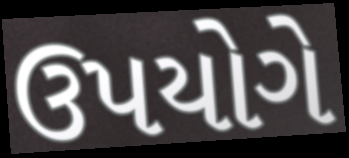
ઉપયોગે